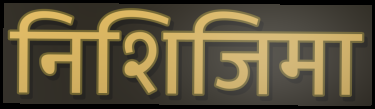
निशिजिमा